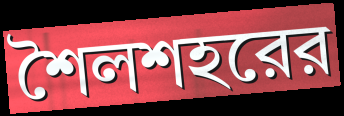
শৈলশহরের